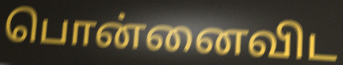
பொன்னைவிட